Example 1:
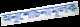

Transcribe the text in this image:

অনুশোচনামূলক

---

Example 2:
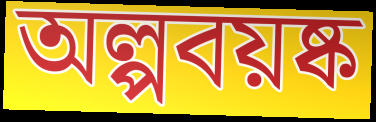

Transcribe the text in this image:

অল্পবয়ষ্ক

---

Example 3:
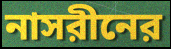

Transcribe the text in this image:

নাসরীনের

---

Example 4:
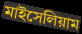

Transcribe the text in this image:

মাইসেলিয়াম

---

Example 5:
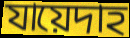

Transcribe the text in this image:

যায়েদাহ